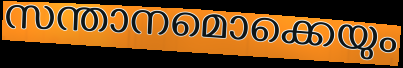
സന്താനമൊക്കെയും